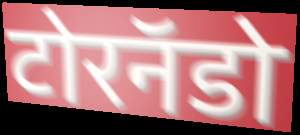
टोरनॅडो